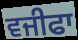
ਵਜੀਫਾ